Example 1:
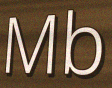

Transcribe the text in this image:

Mb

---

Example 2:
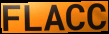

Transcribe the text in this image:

FLACC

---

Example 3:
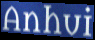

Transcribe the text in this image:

Anhui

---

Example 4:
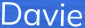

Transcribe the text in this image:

Davie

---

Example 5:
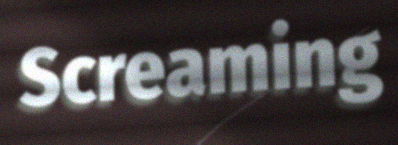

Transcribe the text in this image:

Screaming